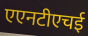
एएनटीएचई